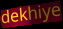
dekhiye